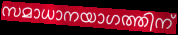
സമാധാനയാഗത്തിന്